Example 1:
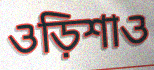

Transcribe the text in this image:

ওড়িশাও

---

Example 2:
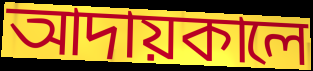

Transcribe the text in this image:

আদায়কালে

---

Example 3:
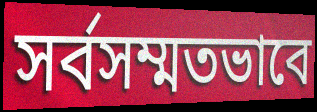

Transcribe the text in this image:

সর্বসম্মতভাবে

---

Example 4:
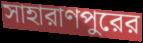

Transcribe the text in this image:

সাহারাণপুরের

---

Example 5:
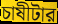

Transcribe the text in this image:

চাষীটার